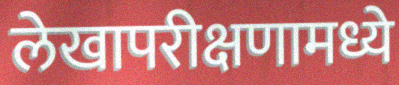
लेखापरीक्षणामध्ये